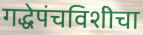
गद्धेपंचविशीचा